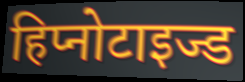
हिप्नोटाइज्ड